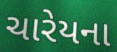
ચારેયના